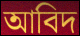
আবিদ